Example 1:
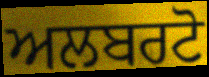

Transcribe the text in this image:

ਅਲਬਰਟੋ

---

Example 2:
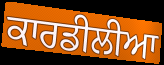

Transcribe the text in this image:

ਕਾਰਡੀਲੀਆ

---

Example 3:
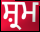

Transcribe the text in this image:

ਸ਼੍ਰਮ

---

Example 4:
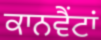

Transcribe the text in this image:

ਕਾਨਵੈਂਟਾਂ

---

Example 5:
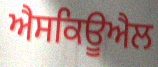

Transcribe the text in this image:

ਐਸਕਿਊਐਲ